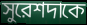
সুরেশদাকে